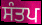
ਸੰਤਪ